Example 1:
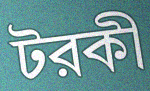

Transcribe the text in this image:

টরকী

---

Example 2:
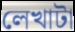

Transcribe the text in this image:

লেখাটা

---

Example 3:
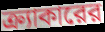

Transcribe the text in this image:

ক্র্যাকারের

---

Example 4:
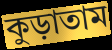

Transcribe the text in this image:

কুড়াতাম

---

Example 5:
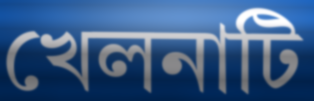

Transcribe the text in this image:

খেলনাটি